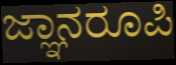
ಜ್ಞಾನರೂಪಿ